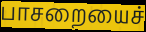
பாசறையைச்